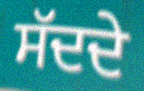
ਸੱਦਦੇ